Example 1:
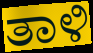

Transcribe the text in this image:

ತಾಳಿ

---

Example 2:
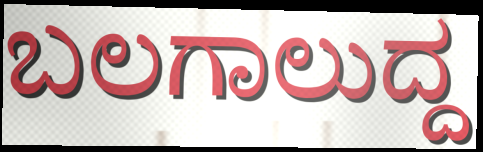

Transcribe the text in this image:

ಬಲಗಾಲುದ್ದ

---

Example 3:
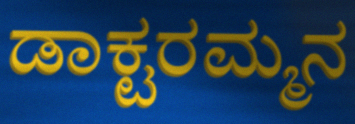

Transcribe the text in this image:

ಡಾಕ್ಟರಮ್ಮನ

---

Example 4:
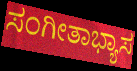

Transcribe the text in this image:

ಸಂಗೀತಾಭ್ಯಾಸ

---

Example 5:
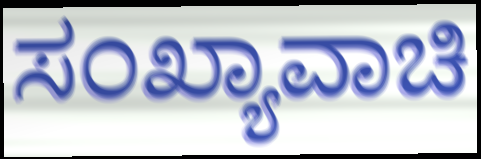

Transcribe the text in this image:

ಸಂಖ್ಯಾವಾಚಿ